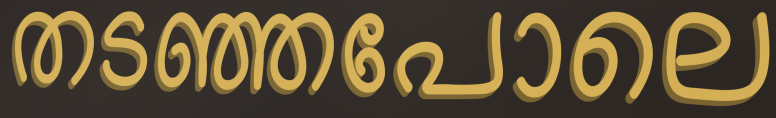
തടഞ്ഞപോലെ